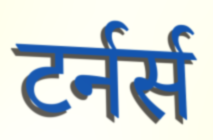
टर्नर्स